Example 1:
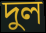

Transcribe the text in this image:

দুল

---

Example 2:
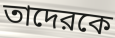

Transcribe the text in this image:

তাদেরকে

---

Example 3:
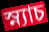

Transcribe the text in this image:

স্ন্যাচ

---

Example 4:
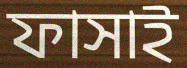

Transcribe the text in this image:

ফাসাই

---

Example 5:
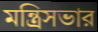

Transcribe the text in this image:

মন্ত্রিসভার